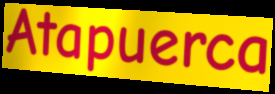
Atapuerca